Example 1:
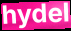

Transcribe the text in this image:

hydel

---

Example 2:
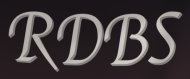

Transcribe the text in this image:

RDBS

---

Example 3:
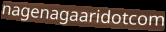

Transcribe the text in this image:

nagenagaaridotcom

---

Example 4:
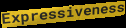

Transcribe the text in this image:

Expressiveness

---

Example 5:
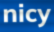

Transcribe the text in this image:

nicy